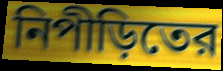
নিপীড়িতের